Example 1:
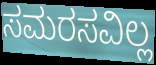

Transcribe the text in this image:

ಸಮರಸವಿಲ್ಲ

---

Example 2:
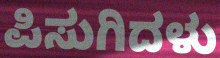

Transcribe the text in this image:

ಪಿಸುಗಿದಳು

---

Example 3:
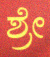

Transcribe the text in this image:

ಶ್ರೇ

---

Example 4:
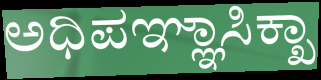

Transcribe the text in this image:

ಅಧಿಪಞ್ಞಾಸಿಕ್ಖಾ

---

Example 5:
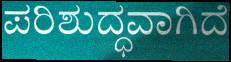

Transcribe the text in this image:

ಪರಿಶುದ್ಧವಾಗಿದೆ